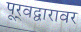
पूर्वद्वारावर